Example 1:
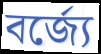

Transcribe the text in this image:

বর্জ্যে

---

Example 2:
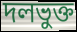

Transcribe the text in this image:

দলভুক্ত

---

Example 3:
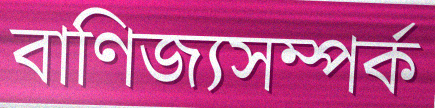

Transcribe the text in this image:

বাণিজ্যসম্পর্ক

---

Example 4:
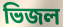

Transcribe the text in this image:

ভিজল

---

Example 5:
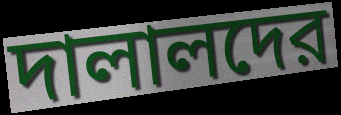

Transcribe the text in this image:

দালালদের